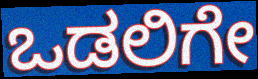
ಒಡಲಿಗೇ